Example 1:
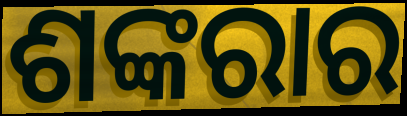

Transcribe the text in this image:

ଶଙ୍କରାର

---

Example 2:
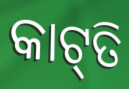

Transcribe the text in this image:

କାଟ୍‍ତି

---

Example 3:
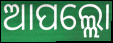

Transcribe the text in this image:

ଆପଲ୍ଲୋ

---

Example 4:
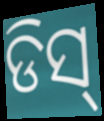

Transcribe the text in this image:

ଡିସ୍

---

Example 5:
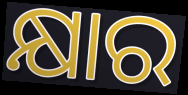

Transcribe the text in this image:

କ୍ଷାର